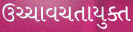
ઉચ્ચાવચતાયુક્ત